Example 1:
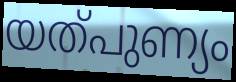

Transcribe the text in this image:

യത്പുണ്യം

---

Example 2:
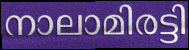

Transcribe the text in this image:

നാലാമിരട്ടി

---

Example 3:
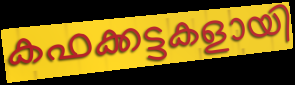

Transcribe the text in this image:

കഫക്കട്ടകളായി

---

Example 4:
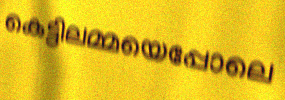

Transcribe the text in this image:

കെട്ടിലമ്മയെപ്പോലെ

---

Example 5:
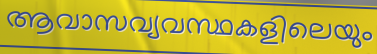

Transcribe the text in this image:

ആവാസവ്യവസ്ഥകളിലെയും